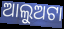
ଆଲୁଅଟା